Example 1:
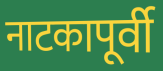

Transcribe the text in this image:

नाटकापूर्वी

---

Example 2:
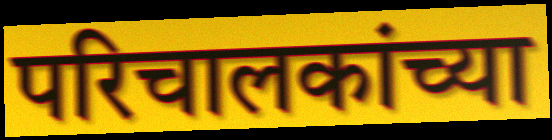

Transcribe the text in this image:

परिचालकांच्या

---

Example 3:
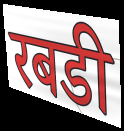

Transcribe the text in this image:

रबडी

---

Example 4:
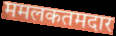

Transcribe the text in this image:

ममलकतमदार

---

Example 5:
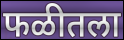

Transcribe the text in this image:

फळीतला